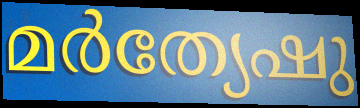
മർത്യേഷു